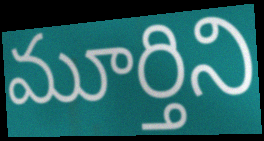
మూర్తిని